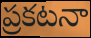
ప్రకటనా